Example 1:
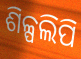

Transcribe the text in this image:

ଶିଳ୍ପଲିପି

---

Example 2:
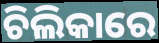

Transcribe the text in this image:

ଚିଲିକାରେ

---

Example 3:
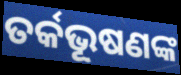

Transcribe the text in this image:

ତର୍କଭୂଷଣଙ୍କ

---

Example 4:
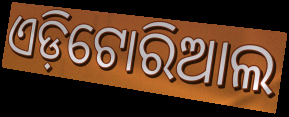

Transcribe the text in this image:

ଏଡ଼ିଟୋରିଆଲ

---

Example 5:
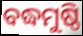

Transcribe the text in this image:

ବଦ୍ଧମୁଷ୍ଠି